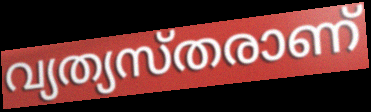
വ്യത്യസ്തരാണ്